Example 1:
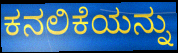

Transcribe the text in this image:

ಕನಲಿಕೆಯನ್ನು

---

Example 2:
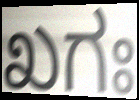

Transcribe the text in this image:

ಖಗಃ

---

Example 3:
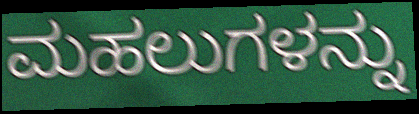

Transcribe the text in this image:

ಮಹಲುಗಳನ್ನು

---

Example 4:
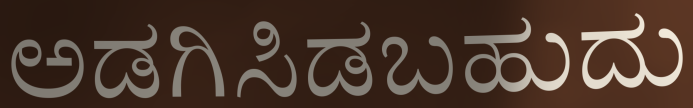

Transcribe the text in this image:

ಅಡಗಿಸಿಡಬಹುದು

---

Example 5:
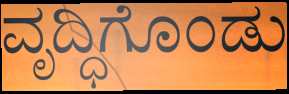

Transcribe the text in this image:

ವೃದ್ಧಿಗೊಂಡು